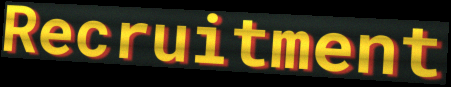
Recruitment